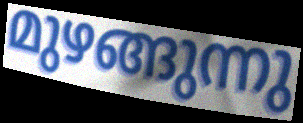
മുഴങ്ങുന്നു